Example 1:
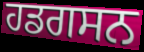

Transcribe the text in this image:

ਹਡਗਸਨ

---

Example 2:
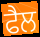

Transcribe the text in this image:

ਫੈਲ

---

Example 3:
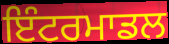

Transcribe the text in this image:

ਇੰਟਰਮਾਡਲ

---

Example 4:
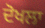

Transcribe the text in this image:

ਦੋਖਲਾ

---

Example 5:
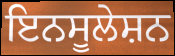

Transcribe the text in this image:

ਇਨਸੂਲੇਸ਼ਨ